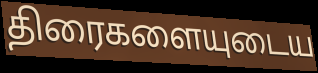
திரைகளையுடைய